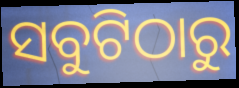
ସବୁଟିଠାରୁ